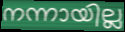
നന്നായില്ല